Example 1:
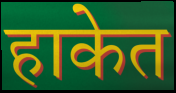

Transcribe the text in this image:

हाकेत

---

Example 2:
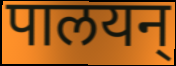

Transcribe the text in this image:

पालयन्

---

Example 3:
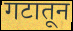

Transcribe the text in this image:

गटातून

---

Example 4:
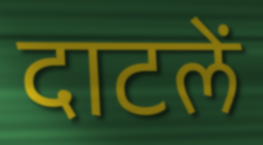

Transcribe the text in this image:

दाटलें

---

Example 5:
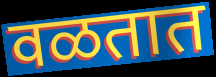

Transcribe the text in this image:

वळतात